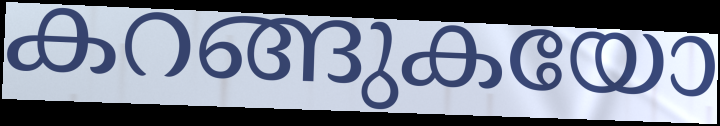
കറങ്ങുകയോ